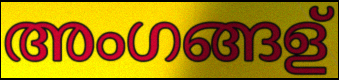
അംഗങ്ങള്